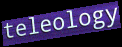
teleology